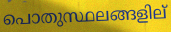
പൊതുസ്ഥലങ്ങളില്